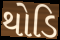
થોડિ